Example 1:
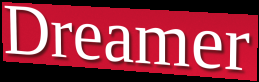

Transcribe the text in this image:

Dreamer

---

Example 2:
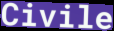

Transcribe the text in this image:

Civile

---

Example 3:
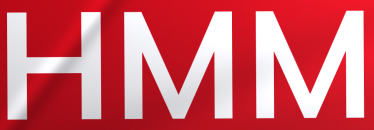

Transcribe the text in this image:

HMM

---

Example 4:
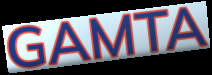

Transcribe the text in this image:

GAMTA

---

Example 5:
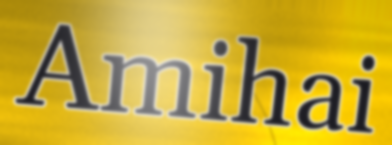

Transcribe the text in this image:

Amihai